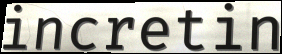
incretin